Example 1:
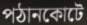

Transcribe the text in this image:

পঠানকোটে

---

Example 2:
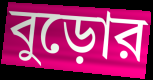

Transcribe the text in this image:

বুড়োর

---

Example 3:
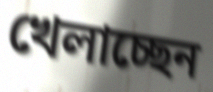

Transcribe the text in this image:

খেলাচ্ছেন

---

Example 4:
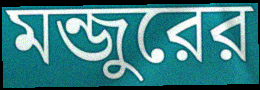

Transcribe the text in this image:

মন্জুরের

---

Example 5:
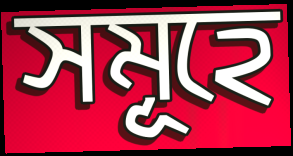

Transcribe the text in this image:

সমূহে